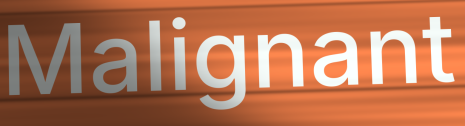
Malignant